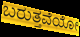
ಬರುತ್ತವೆಯೋ